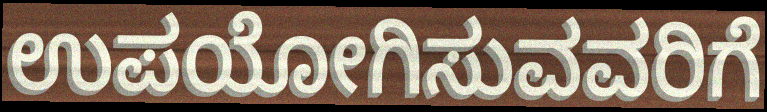
ಉಪಯೋಗಿಸುವವರಿಗೆ